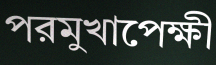
পরমুখাপেক্ষী